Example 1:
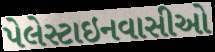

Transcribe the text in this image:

પેલેસ્ટાઇનવાસીઓ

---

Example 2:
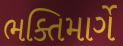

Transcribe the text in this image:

ભક્તિમાર્ગે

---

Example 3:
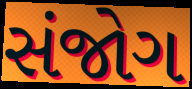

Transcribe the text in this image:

સંજોગ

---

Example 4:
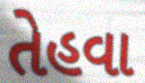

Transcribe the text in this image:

તેહવા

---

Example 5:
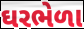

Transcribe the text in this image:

ઘરભેળા